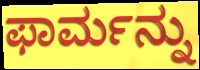
ಫಾರ್ಮನ್ನು